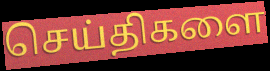
செய்திகளை